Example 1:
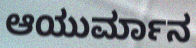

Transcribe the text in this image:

ಆಯುರ್ಮಾನ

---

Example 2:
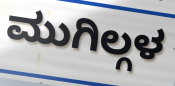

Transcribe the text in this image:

ಮುಗಿಲ್ಗಳ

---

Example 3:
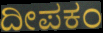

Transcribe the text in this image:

ದೀಪಕಂ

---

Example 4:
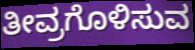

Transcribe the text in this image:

ತೀವ್ರಗೊಳಿಸುವ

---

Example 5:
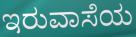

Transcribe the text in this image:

ಇರುವಾಸೆಯ